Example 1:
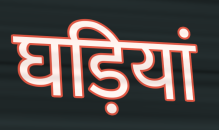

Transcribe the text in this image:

घड़ियां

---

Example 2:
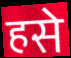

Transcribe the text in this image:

हसे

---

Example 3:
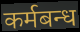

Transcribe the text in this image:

कर्मबन्ध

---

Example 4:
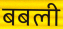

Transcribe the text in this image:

बबली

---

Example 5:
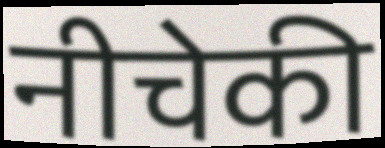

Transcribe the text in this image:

नीचेकी